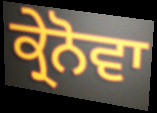
ਕ੍ਰੇਨੋਵਾ